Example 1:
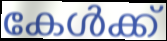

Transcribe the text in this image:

കേൾക്ക്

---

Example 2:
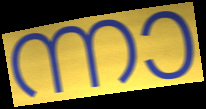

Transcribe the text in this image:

ന്നാ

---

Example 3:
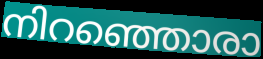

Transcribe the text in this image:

നിറഞ്ഞൊരാ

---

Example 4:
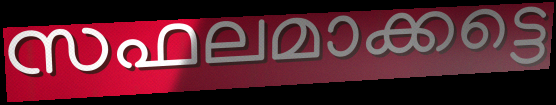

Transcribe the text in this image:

സഫലമാക്കട്ടെ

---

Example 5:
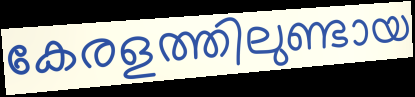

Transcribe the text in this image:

കേരളത്തിലുണ്ടായ